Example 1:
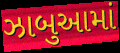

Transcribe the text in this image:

ઝાબુઆમાં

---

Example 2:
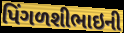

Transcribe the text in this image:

પિંગળશીભાઇની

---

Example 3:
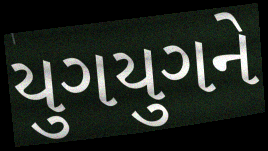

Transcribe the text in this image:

યુગયુગને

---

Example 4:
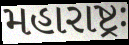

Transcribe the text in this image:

મહારાષ્ટ્રઃ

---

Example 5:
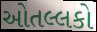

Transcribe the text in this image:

ઓતલ્લકો